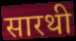
सारथी